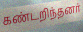
கண்டறிந்தனர்